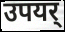
उपयर्